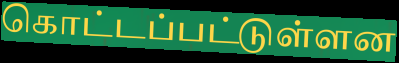
கொட்டப்பட்டுள்ளன